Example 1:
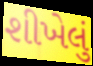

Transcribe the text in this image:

શીખેલું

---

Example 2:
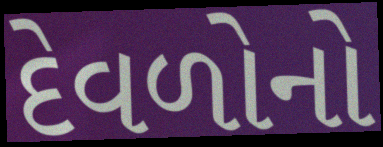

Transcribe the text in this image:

દેવળોનો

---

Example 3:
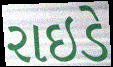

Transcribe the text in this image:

રાઇડે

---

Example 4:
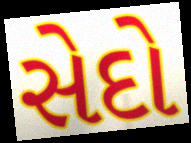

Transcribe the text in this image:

સેદો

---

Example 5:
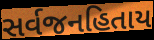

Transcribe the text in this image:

સર્વજનહિતાય